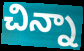
చిన్నా